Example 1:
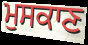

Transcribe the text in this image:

ਮੁਸਕਾਣ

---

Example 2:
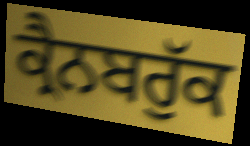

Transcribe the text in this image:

ਕ੍ਰੈਨਬਰੁੱਕ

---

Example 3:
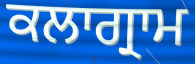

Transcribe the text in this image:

ਕਲਾਗ੍ਰਾਮ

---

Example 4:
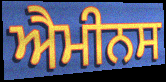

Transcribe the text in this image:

ਐਮੀਨਸ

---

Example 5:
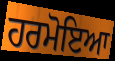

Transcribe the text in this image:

ਹਰਮੋਇਆ